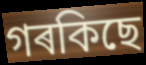
গৰকিছে